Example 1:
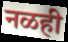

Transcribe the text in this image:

नळही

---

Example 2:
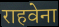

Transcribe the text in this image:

राहवेना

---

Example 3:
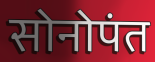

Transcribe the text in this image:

सोनोपंत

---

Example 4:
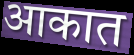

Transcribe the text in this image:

आकात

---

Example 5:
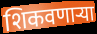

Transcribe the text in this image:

शिकवणाऱ्या